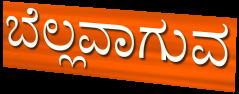
ಬೆಲ್ಲವಾಗುವ